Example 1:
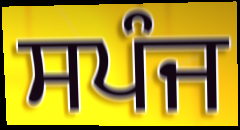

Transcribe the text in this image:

ਸਪੰਜ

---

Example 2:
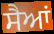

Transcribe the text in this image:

ਸੈਆਂ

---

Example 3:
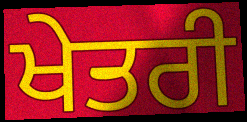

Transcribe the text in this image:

ਖੇਤਰੀ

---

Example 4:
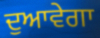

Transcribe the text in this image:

ਦੁਆਵੇਗਾ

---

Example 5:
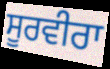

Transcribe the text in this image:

ਸੂਰਵੀਰਾ